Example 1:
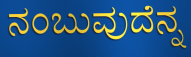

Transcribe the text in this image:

ನಂಬುವುದೆನ್ನ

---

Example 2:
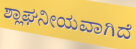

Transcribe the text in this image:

ಶ್ಲಾಘನೀಯವಾಗಿದೆ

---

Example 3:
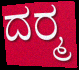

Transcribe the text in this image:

ದರ‍್ಮ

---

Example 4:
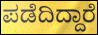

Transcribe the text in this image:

ಪಡೆದಿದ್ದಾರೆ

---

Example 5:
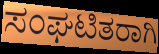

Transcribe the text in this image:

ಸಂಘಟಿತರಾಗಿ